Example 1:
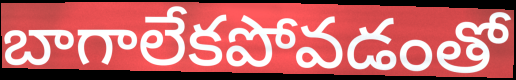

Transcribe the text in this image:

బాగాలేకపోవడంతో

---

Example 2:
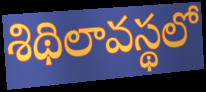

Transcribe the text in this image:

శిథిలావస్థలో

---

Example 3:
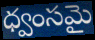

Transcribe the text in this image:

ధ్వంసమై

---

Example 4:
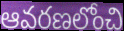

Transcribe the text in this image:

ఆవరణలోంచి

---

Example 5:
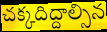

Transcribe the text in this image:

చక్కదిద్దాల్సిన